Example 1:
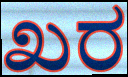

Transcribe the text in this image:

ಖರ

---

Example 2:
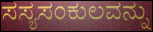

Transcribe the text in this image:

ಸಸ್ಯಸಂಕುಲವನ್ನು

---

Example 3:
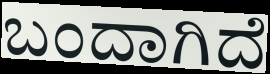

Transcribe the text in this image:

ಬಂದಾಗಿದೆ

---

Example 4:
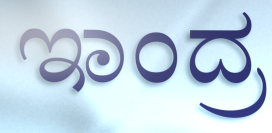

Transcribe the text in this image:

ಇಾಂದ್ರ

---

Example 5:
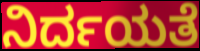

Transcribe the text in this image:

ನಿರ್ದಯತೆ